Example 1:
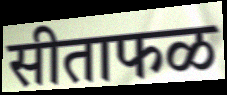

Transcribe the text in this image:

सीताफळ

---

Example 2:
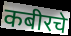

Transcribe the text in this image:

कबीरचे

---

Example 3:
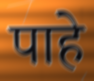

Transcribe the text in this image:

पाहे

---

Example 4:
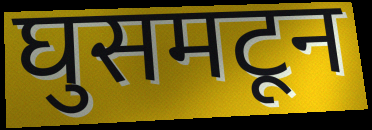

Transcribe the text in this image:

घुसमटून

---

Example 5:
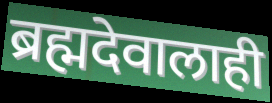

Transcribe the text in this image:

ब्रह्मदेवालाही